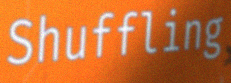
Shuffling